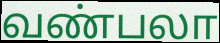
வண்பலா